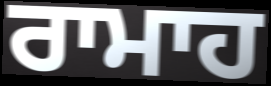
ਰਾਮਾਹ